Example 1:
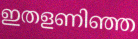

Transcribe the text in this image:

ഇതളണിഞ്ഞ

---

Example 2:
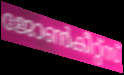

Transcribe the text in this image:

ജോൺകീറ്റ്സ്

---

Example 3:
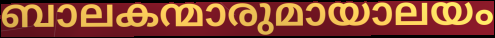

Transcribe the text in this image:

ബാലകന്മാരുമായാലയം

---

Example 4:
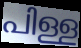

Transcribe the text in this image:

പിള്ള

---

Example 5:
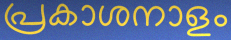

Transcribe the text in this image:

പ്രകാശനാളം